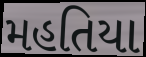
મહતિયા